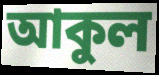
আকুল